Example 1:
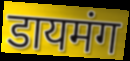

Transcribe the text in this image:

डायमंग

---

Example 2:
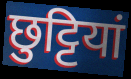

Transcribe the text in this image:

छुट्टियां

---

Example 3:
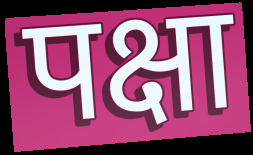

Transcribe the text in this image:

पक्षा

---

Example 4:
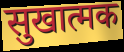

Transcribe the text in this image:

सुखात्मक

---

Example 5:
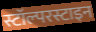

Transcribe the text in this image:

स्टॉल्परस्टाइन